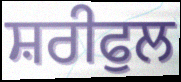
ਸ਼ਰੀਫੁਲ